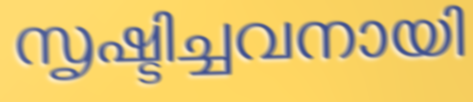
സൃഷ്ടിച്ചവനായി